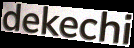
dekechi